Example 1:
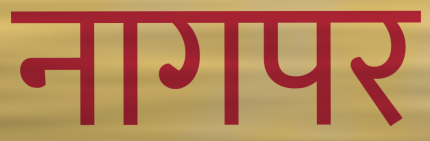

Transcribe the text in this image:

नागपर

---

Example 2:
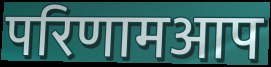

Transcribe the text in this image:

परिणामआप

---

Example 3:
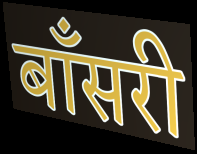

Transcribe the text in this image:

बाँसरी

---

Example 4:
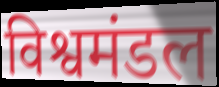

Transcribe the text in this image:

विश्वमंडल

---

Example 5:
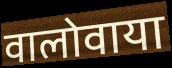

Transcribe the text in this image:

वालोवाया